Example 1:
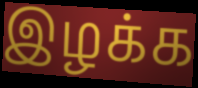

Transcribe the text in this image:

இழக்க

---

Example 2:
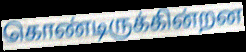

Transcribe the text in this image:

கொண்டிருக்கின்றன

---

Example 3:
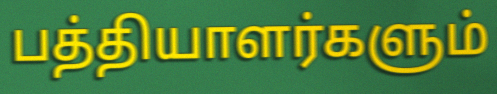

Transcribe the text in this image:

பத்தியாளர்களும்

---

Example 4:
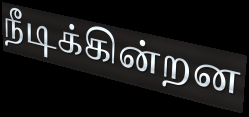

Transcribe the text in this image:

நீடிக்கின்றன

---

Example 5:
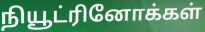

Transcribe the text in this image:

நியூட்ரினோக்கள்